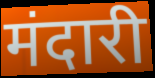
मंदारी